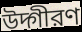
উদ্গীরণ